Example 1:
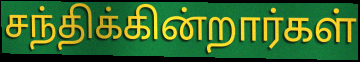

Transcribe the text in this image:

சந்திக்கின்றார்கள்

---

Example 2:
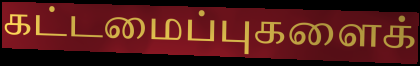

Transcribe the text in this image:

கட்டமைப்புகளைக்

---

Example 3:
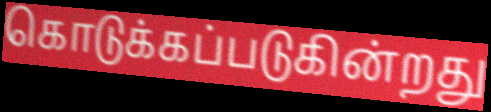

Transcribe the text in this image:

கொடுக்கப்படுகின்றது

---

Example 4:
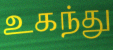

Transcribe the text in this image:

உகந்து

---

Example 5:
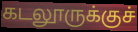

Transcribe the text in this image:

கடலூருக்குச்